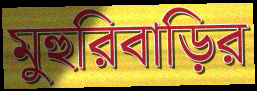
মুহুরিবাড়ির